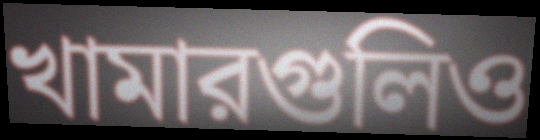
খামারগুলিও